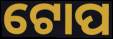
ଟୋପ